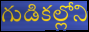
గుడికల్లోని